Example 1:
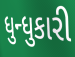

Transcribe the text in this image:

ધુન્ધુકારી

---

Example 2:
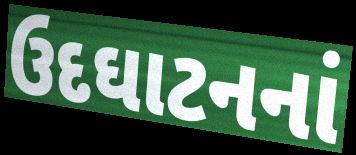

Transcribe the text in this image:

ઉદઘાટનનાં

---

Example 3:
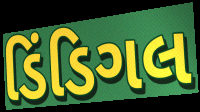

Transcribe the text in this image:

ડિંડિગલ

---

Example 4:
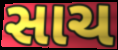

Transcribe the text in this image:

સાચ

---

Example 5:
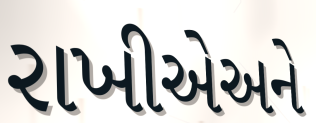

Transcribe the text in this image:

રાખીએઅને